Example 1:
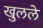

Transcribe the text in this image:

खुलले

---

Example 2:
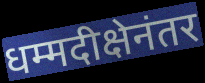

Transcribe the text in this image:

धम्मदीक्षेनंतर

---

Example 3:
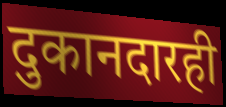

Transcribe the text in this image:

दुकानदारही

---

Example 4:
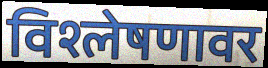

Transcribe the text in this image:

विश्लेषणावर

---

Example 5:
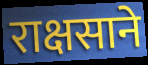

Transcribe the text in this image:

राक्षसाने